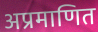
अप्रमाणित